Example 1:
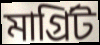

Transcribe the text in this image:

মাৰ্গ্ৰিট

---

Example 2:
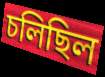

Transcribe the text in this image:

চলিছিল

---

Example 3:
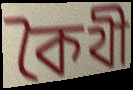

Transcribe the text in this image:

কৈথী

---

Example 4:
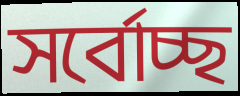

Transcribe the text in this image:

সৰ্বোচ্ছ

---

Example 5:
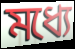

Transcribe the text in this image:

মধ্যে